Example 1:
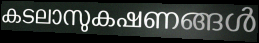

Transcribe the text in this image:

കടലാസുകഷണങ്ങൾ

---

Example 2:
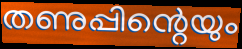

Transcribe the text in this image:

തണുപ്പിന്റെയും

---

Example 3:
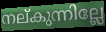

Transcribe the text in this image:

നല്കുന്നില്ലേ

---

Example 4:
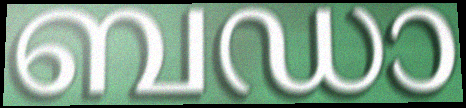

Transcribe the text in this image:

ബഡാ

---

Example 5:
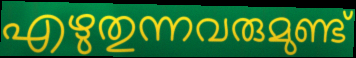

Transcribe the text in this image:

എഴുതുന്നവരുമുണ്ട്